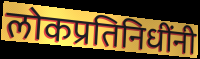
लोकप्रतिनिधींनी